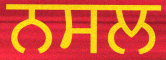
ਨਸਲ